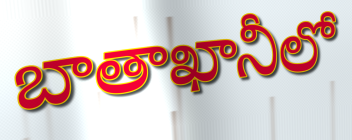
బాతాఖానీలో